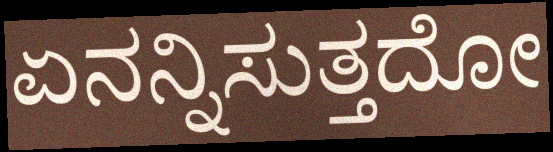
ಏನನ್ನಿಸುತ್ತದೋ